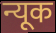
न्यूक